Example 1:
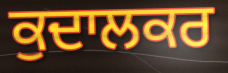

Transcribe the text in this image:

ਕੁਦਾਲਕਰ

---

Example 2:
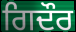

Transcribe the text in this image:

ਗਿਦੌਰ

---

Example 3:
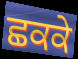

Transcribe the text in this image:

ਛਕਕੇ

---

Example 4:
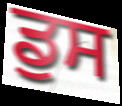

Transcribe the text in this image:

ਡੁਸ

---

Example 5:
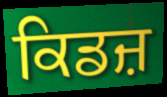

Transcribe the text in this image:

ਕਿਡਜ਼